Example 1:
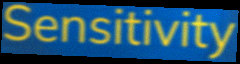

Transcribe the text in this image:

Sensitivity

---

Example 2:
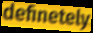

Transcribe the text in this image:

definetely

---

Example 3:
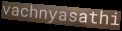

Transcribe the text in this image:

vachnyasathi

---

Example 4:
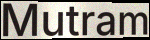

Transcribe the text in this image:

Mutram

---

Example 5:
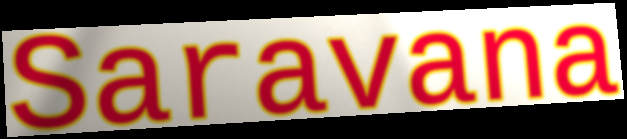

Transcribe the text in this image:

Saravana